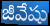
జీవేషు